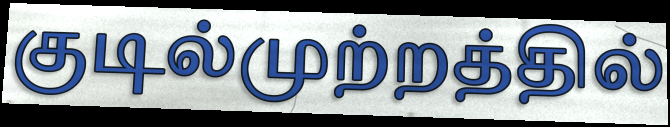
குடில்முற்றத்தில்